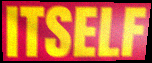
ITSELF